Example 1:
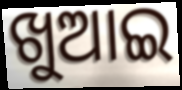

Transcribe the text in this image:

ଖୁଆଇ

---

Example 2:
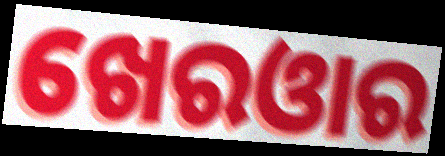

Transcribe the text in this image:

ଖେରଓାର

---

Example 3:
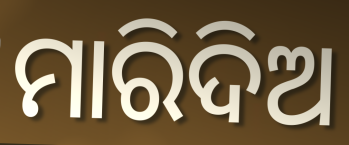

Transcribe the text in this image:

ମାରିଦିଅ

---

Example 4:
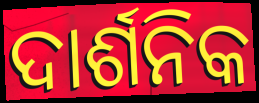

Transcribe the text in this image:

ଦାର୍ଶନିକ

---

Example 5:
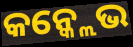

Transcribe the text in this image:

କନ୍କ୍ଲେଭ